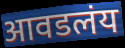
आवडलंय